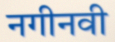
नगीनवी